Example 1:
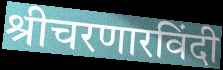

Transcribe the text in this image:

श्रीचरणारविंदी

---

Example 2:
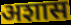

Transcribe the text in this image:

अशास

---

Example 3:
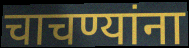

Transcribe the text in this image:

चाचण्यांना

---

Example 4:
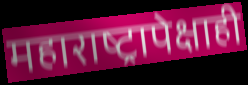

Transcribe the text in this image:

महाराष्ट्रापेक्षाही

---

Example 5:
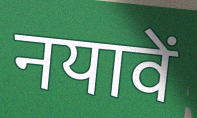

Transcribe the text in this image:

नयावें